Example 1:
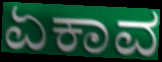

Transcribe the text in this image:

ಏಕಾವ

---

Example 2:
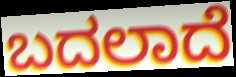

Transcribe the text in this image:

ಬದಲಾದೆ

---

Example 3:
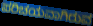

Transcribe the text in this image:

ಪರಿಚಯವಾಗಿರುವ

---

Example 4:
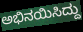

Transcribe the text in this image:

ಅಭಿನಯಿಸಿದ್ದು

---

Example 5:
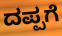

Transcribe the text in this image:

ದಪ್ಪಗೆ